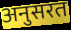
अनुसरत